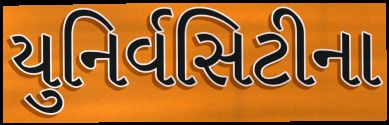
યુનિર્વસિટીના